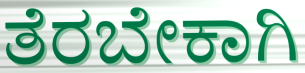
ತೆರಬೇಕಾಗಿ